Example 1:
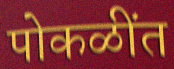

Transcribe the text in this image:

पोकळींत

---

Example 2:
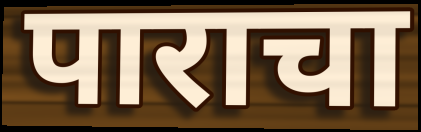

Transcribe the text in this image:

पाराचा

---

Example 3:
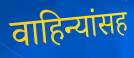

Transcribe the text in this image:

वाहिन्यांसह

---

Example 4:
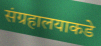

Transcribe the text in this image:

संग्रहालयाकडे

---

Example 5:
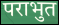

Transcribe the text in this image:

पराभुत